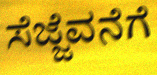
ಸೆಜ್ಜೆವನೆಗೆ